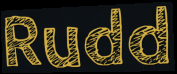
Rudd